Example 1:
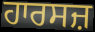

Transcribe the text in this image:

ਹਾਰਸਜ਼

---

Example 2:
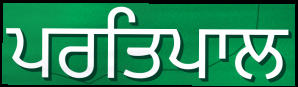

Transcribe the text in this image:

ਪਰਤਿਪਾਲ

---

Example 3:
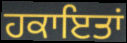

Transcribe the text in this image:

ਹਕਾਇਤਾਂ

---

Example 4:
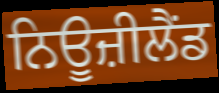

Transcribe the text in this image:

ਨਿਊਜ਼ੀਲੈੰਡ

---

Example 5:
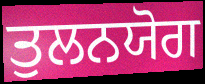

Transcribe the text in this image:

ਤੁਲਨਯੋਗ